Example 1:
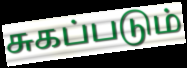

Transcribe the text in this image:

சுகப்படும்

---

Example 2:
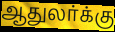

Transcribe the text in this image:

ஆதுலர்க்கு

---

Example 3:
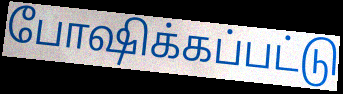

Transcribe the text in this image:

போஷிக்கப்பட்டு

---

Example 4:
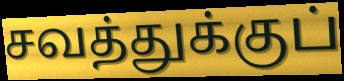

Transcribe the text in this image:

சவத்துக்குப்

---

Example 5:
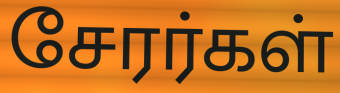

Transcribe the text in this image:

சேரர்கள்